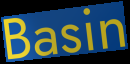
Basin